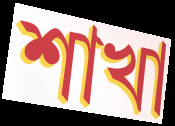
শাখা